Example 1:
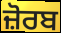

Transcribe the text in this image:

ਜ਼ੋਰਬ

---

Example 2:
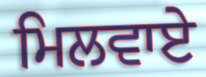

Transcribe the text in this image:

ਮਿਲਵਾਏ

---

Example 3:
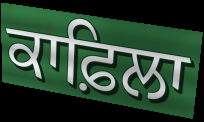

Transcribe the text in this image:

ਕਾਫ਼ਿਲਾ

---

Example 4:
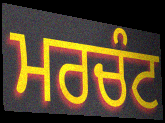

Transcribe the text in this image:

ਮਰਚੰਟ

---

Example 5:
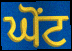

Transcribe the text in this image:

ਘੋਂਟ